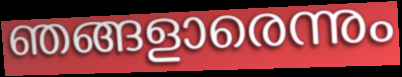
ഞങ്ങളാരെന്നും